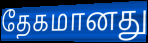
தேகமானது